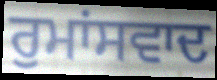
ਰੁਮਾਂਸਵਾਦ